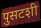
पुसटशी